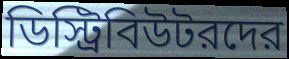
ডিস্ট্রিবিউটরদের